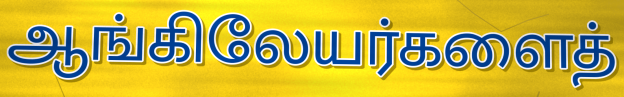
ஆங்கிலேயர்களைத்